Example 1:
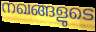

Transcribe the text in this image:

നഖങ്ങളുടെ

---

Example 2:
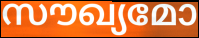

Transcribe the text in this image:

സൗഖ്യമോ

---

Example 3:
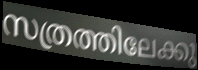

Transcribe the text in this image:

സത്രത്തിലേക്കു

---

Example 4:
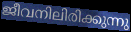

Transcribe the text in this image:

ജീവനിലിരിക്കുന്നു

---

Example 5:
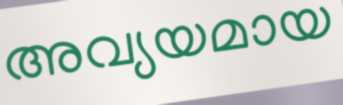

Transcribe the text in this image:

അവ്യയമായ